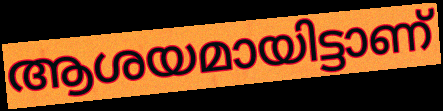
ആശയമായിട്ടാണ്